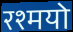
रश्मयो